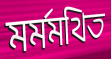
মর্মমথিত